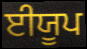
ਈਯੂਪ